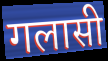
गलासी